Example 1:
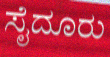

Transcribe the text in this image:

ಸೈದೂರು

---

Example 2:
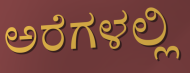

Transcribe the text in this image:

ಅರೆಗಳಲ್ಲಿ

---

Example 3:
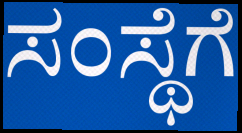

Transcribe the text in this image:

ಸಂಸ್ಥೆಗೆ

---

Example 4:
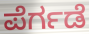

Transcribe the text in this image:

ಪೆರ್ಗಡೆ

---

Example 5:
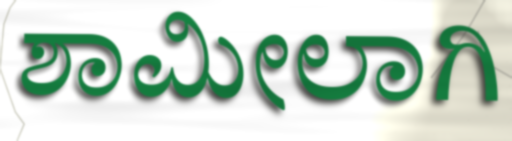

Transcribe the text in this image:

ಶಾಮೀಲಾಗಿ